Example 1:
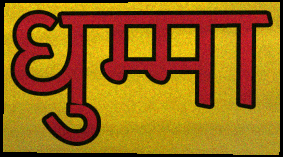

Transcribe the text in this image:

धुम्मा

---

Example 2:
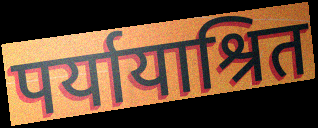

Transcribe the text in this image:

पर्यायाश्रित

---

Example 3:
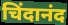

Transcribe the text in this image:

चिंदानंद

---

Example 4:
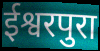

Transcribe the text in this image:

ईश्वरपुरा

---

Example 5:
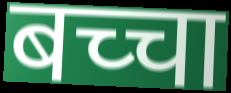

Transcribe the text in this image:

बच्‍चा